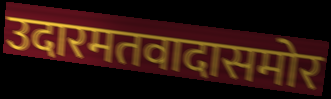
उदारमतवादासमोर